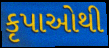
કૃપાઓથી